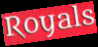
Royals